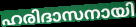
ഹരിദാസനായി